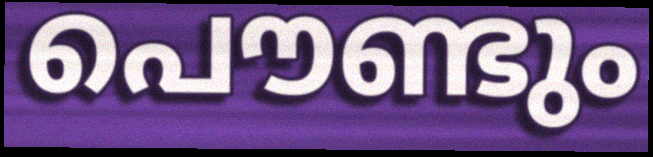
പൌണ്ടും